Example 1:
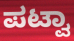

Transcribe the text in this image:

ಪಟ್ವಾ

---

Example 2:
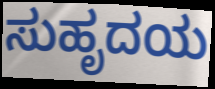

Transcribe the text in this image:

ಸುಹೃದಯ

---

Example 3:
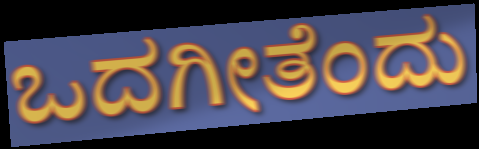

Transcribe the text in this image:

ಒದಗೀತೆಂದು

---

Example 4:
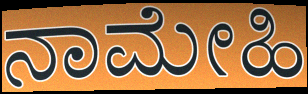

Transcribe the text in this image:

ನಾಮೇಹಿ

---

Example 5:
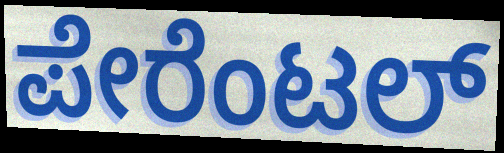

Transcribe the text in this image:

ಪೇರೆಂಟಲ್